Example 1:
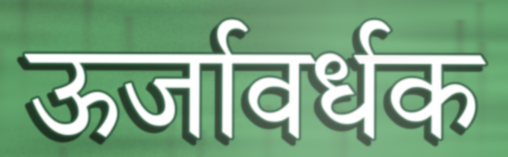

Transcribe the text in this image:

ऊर्जावर्धक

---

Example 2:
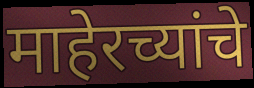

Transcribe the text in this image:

माहेरच्यांचे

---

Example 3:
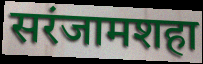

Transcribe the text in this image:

सरंजामशहा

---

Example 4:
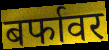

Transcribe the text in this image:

बर्फावर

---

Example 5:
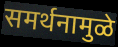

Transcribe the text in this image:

समर्थनामुळे